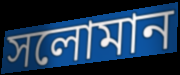
সলোমান